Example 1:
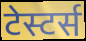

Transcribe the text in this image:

टेस्टर्स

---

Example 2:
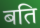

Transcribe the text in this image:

बति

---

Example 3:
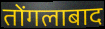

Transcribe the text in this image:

तोंगलाबाद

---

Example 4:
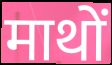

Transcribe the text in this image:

माथों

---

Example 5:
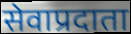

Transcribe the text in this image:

सेवाप्रदाता